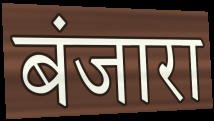
बंजारा